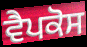
ਵੈਪਕੋਸ